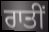
ਰਾਤੀਂ